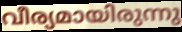
വീര്യമായിരുന്നു